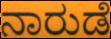
ನಾರುಡೆ